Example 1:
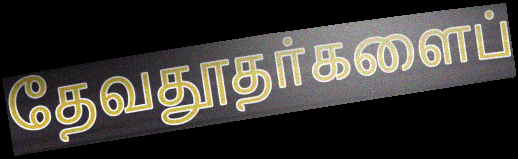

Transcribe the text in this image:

தேவதூதர்களைப்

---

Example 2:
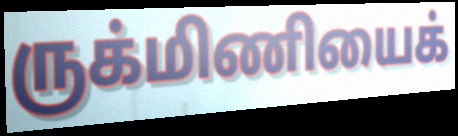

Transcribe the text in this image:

ருக்மிணியைக்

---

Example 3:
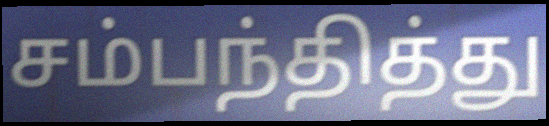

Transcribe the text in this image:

சம்பந்தித்து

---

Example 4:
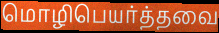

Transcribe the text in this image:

மொழிபெயர்த்தவை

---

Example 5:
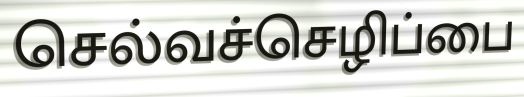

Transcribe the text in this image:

செல்வச்செழிப்பை